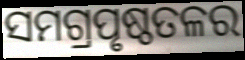
ସମଗ୍ରପୃଷ୍ଠତଳର